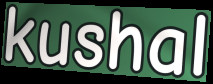
kushal